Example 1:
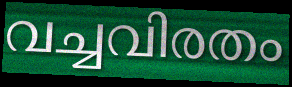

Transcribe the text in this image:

വച്ചവിരതം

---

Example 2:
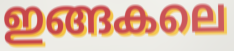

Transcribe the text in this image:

ഇങ്ങകലെ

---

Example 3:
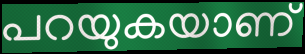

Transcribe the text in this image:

പറയുകയാണ്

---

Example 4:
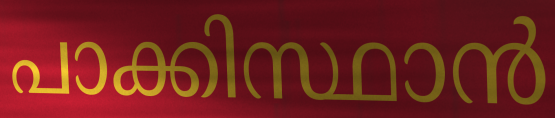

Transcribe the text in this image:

പാക്കിസ്ഥാൻ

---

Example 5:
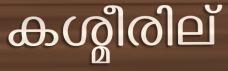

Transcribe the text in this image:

കശ്മീരില്